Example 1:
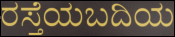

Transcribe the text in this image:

ರಸ್ತೆಯಬದಿಯ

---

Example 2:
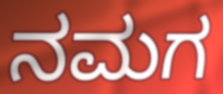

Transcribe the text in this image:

ನಮಗ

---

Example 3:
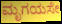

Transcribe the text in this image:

ಮೃಗಯಸೇ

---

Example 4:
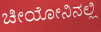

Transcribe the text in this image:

ಚೀಯೋನಿನಲ್ಲಿ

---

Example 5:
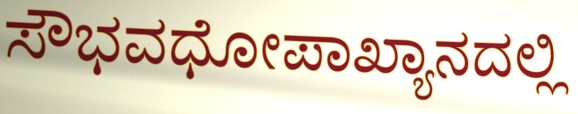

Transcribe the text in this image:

ಸೌಭವಧೋಪಾಖ್ಯಾನದಲ್ಲಿ